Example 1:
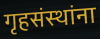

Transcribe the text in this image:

गृहसंस्थांना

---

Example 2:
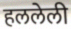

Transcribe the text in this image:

हललेली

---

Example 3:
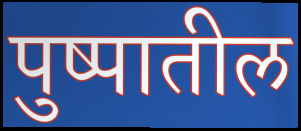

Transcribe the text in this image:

पुष्पातील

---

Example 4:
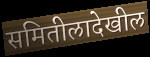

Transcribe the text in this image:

समितीलादेखील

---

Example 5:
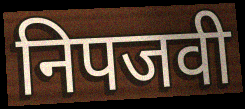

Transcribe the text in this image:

निपजवी